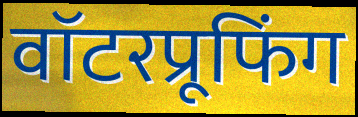
वॉटरप्रूफिंग